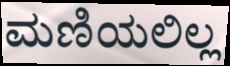
ಮಣಿಯಲಿಲ್ಲ